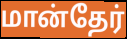
மான்தேர்